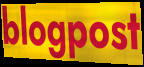
blogpost